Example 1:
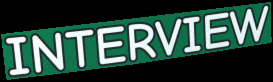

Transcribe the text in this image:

INTERVIEW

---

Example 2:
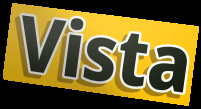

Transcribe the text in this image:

Vista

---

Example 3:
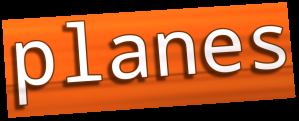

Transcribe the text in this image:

planes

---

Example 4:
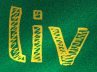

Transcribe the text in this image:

liv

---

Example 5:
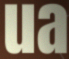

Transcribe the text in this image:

ua